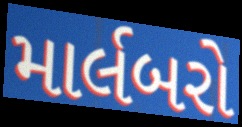
માર્લબરો